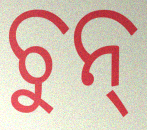
ଚୁନ୍